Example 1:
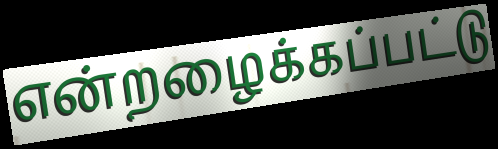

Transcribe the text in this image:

என்றழைக்கப்பட்டு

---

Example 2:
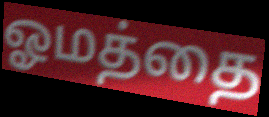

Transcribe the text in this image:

ஓமத்தை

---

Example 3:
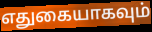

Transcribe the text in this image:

எதுகையாகவும்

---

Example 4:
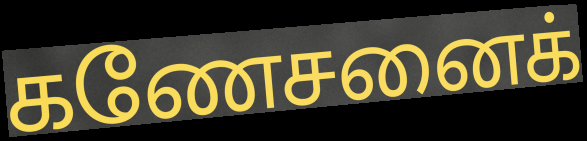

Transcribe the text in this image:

கணேசனைக்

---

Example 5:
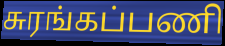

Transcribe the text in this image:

சுரங்கப்பணி